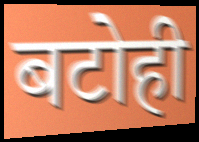
बटोही